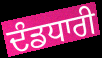
ਦੰਡਧਾਰੀ